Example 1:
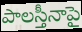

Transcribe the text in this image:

పాలస్తీనాపై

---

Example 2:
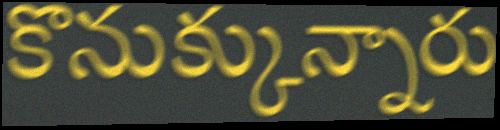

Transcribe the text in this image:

కొనుక్కున్నారు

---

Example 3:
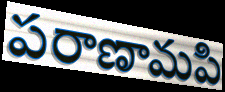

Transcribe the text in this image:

పరాణామపి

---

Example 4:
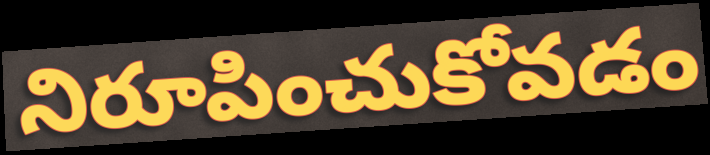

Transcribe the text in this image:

నిరూపించుకోవడం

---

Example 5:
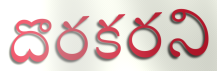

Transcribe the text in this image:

దొరకరని